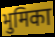
भुमिका